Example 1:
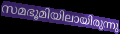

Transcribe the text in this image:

സമഭൂമിയിലായിരുന്നു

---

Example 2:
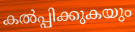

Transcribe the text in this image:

കൽപ്പിക്കുകയും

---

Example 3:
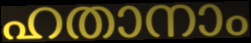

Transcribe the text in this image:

ഹതാനാം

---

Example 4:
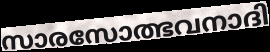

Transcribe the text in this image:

സാരസോത്ഭവനാദി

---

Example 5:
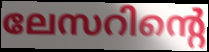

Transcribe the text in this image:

ലേസറിന്റെ